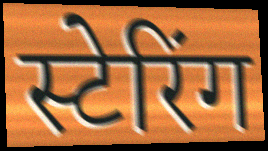
स्टेरिंग